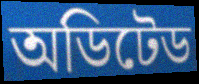
অডিটেড